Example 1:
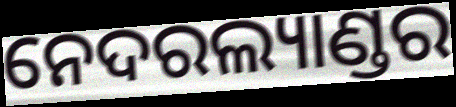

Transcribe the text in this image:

ନେଦରଲ୍ୟାଣ୍ଡର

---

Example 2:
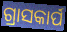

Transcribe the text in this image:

ଗ୍ରାସକାର୍ପ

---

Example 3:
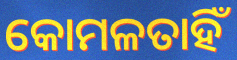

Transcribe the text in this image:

କୋମଳତାହିଁ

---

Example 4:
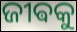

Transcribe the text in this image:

ଜୀଵକୁ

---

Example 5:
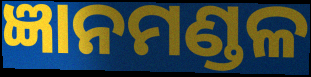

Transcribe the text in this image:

ଜ୍ଞାନମଣ୍ଡଳ